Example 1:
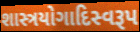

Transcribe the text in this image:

શાસ્ત્રયોગાદિસ્વરૂપ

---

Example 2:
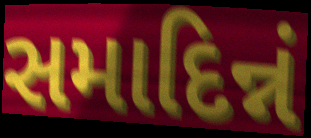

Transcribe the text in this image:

સમાદિન્નં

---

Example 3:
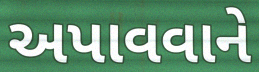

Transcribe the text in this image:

અપાવવાને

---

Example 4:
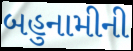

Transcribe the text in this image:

બહુનામીની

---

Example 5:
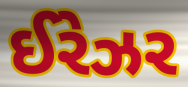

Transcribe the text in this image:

ઈરેઝર